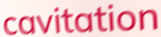
cavitation